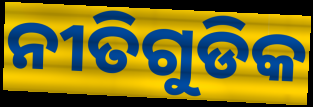
ନୀତିଗୁଡିକ